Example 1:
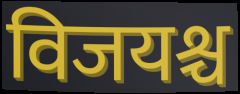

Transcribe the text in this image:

विजयश्च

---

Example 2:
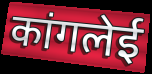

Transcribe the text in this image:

कांगलेई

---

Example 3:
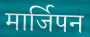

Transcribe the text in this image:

मार्जिपन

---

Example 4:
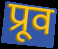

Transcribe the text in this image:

प्रूव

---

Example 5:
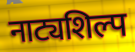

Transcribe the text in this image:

नाट्यशिल्प